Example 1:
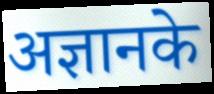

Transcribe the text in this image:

अज्ञानके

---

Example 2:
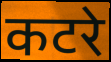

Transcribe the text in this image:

कटरे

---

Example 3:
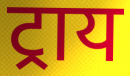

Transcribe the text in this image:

ट्राय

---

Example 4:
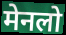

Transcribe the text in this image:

मेनलो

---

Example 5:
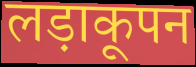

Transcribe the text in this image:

लड़ाकूपन